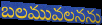
బలమువలనను